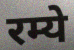
रम्ये